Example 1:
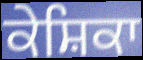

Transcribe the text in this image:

ਕੇਸ਼ਿਕਾ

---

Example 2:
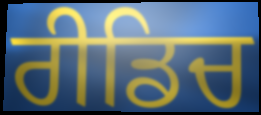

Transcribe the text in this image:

ਰੀਡਿਚ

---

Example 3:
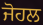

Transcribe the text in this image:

ਜੋਹਲ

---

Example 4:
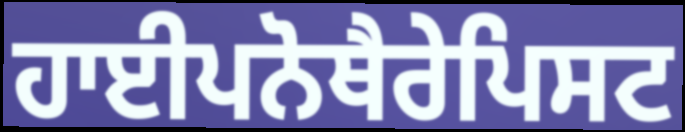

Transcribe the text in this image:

ਹਾਈਪਨੋਥੈਰੇਪਿਸਟ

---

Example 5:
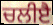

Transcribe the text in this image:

ਚਲੀੲੈ